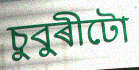
চুবুৰীটো